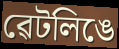
ৱেটলিঙে